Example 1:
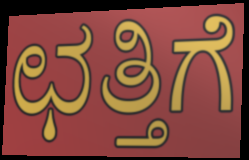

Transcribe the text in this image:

ಛತ್ತಿಗೆ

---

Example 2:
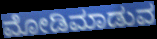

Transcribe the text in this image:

ಮೋಡಿಮಾಡುವ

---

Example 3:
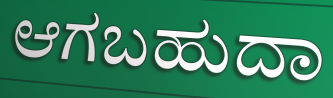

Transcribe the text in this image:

ಆಗಬಹುದಾ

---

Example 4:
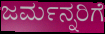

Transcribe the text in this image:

ಜರ್ಮನ್ನರಿಗೆ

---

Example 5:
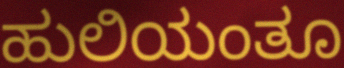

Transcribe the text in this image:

ಹುಲಿಯಂತೂ